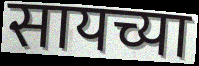
सायच्या